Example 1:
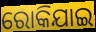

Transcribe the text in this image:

ରୋକିଯାଇ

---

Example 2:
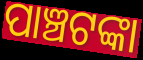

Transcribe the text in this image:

ପାଞ୍ଚଟଙ୍କା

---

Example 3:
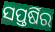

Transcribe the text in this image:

ସପ୍ତର୍ଷିର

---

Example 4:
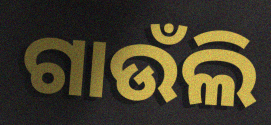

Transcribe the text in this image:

ଗାଉଁଲି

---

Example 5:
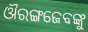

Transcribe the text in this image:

ଔରଙ୍ଗଜେବଙ୍କୁ